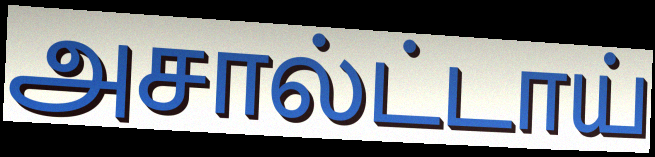
அசால்ட்டாய்